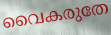
വൈകരുതേ